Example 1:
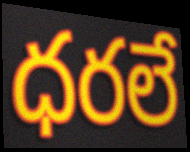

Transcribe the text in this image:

ధరలే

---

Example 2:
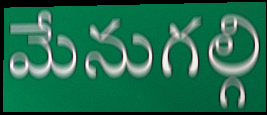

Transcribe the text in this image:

మేనుగల్గి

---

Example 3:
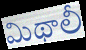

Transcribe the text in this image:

మిథాలీ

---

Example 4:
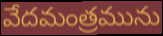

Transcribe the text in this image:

వేదమంత్రమును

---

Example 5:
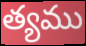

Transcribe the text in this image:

త్యము